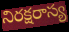
నిరక్షరాస్య